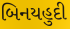
બિનયહુદી